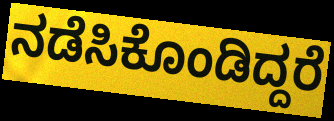
ನಡೆಸಿಕೊಂಡಿದ್ದರೆ